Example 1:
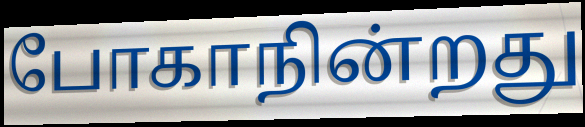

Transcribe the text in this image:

போகாநின்றது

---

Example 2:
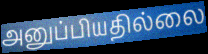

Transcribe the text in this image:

அனுப்பியதில்லை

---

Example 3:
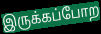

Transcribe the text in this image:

இருக்கப்போற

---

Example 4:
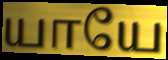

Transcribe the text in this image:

யாயே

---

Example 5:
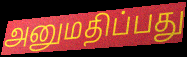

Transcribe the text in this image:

அனுமதிப்பது